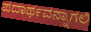
ಪದಾರ್ಥವನ್ನಾಗಲಿ